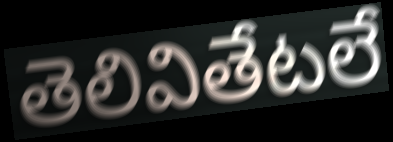
తెలివితేటలే